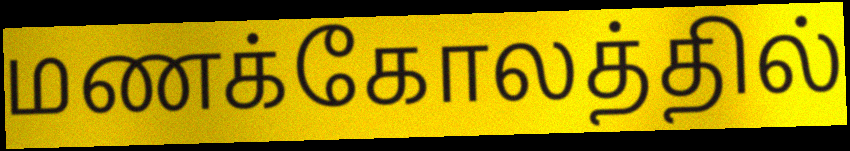
மணக்கோலத்தில்